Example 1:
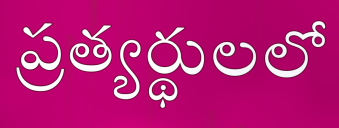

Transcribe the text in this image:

ప్రత్యర్థులలో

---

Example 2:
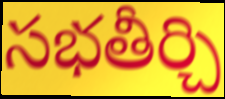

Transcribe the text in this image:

సభతీర్చి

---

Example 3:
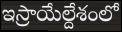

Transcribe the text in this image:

ఇస్రాయేల్దేశంలో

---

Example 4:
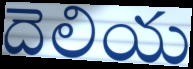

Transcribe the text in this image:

దెలియ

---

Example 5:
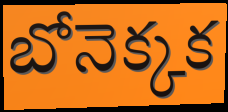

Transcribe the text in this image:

బోనెక్కక